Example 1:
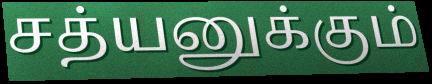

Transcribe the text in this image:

சத்யனுக்கும்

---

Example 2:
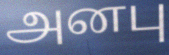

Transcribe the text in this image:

அனபு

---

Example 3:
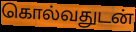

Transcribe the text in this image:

கொல்வதுடன்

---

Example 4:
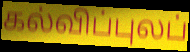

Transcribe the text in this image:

கல்விப்புலப்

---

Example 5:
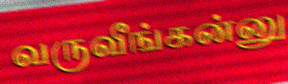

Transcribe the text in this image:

வருவீங்கன்னு